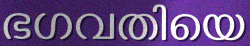
ഭഗവതിയെ